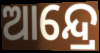
ଆନ୍ଦ୍ରେ